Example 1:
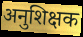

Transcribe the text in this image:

अनुशिक्षक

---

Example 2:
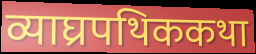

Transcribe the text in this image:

व्याघ्रपथिककथा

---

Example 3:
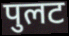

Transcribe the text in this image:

पुलट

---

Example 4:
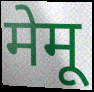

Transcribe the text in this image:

मेमू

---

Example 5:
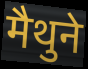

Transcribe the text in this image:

मैथुने